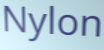
Nylon